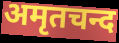
अमृतचन्द